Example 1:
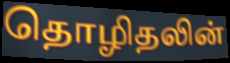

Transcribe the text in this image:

தொழிதலின்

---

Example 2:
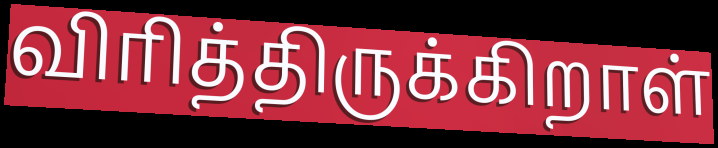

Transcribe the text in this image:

விரித்திருக்கிறாள்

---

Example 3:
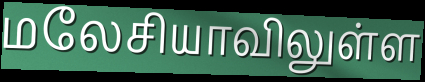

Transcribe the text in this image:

மலேசியாவிலுள்ள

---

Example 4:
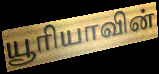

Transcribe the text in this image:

யூரியாவின்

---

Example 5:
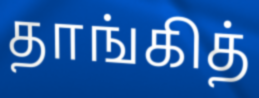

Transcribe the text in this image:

தாங்கித்